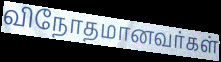
விநோதமானவர்கள்